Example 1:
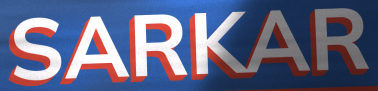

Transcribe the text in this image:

SARKAR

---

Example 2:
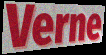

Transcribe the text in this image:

Verne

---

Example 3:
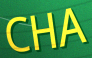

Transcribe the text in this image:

CHA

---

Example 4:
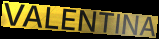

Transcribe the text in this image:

VALENTINA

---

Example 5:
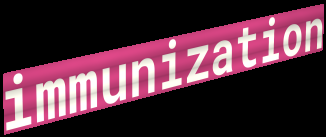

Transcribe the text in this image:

immunization